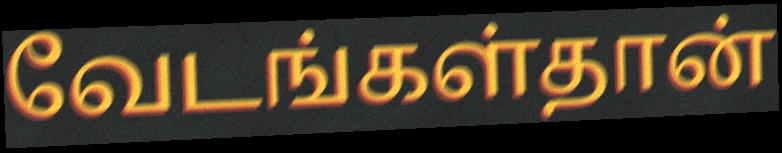
வேடங்கள்தான்